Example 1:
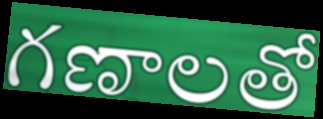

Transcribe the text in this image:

గణాలతో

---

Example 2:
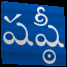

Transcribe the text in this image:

షష్ఠీ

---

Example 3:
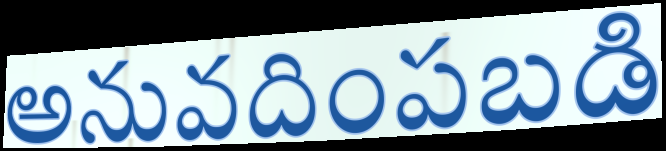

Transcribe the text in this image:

అనువదింపబడి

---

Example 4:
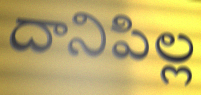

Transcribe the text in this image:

దానిపిల్ల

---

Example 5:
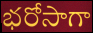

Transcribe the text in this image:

భరోసాగా